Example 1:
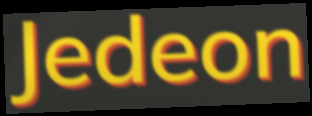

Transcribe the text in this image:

Jedeon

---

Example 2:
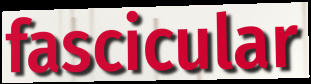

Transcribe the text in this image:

fascicular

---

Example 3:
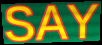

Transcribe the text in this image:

SAY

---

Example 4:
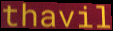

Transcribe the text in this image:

thavil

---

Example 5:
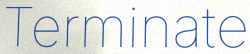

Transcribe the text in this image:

Terminate